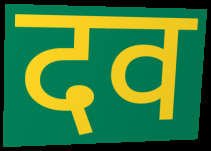
दव